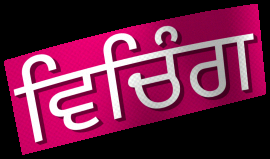
ਵਿਚਿੰਗ